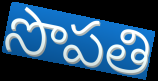
సొపతి